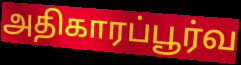
அதிகாரப்பூர்வ